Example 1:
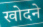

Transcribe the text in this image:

खोदने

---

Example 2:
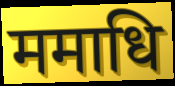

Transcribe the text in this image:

ममाधि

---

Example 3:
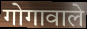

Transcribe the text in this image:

गोगावाले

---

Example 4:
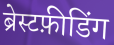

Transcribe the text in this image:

ब्रेस्टफ़ीडिंग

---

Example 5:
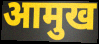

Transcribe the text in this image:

आमुख